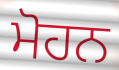
ਮੋਹਨ